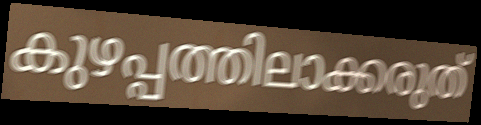
കുഴപ്പത്തിലാക്കരുത്